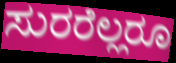
ಸುರರೆಲ್ಲರೂ